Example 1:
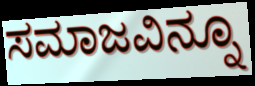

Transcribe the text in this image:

ಸಮಾಜವಿನ್ನೂ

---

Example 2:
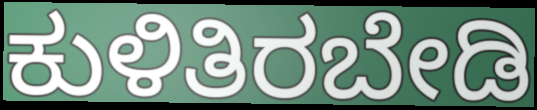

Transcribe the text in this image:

ಕುಳಿತಿರಬೇಡಿ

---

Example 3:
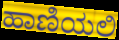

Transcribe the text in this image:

ಹಾಣಿಯಲಿ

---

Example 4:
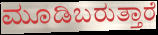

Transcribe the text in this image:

ಮೂಡಿಬರುತ್ತಾರೆ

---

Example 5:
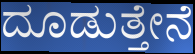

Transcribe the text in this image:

ದೂಡುತ್ತೇನೆ